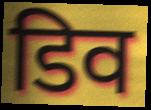
डिव